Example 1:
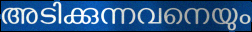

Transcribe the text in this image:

അടിക്കുന്നവനെയും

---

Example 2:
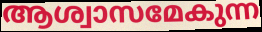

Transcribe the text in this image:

ആശ്വാസമേകുന്ന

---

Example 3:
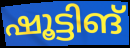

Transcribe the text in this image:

ഷൂട്ടിങ്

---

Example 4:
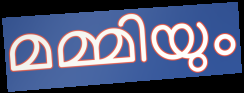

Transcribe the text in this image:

മമ്മിയും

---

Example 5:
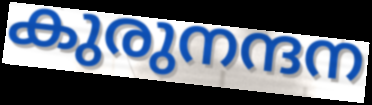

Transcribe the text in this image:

കുരുനന്ദന